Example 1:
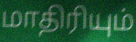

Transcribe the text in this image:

மாதிரியும்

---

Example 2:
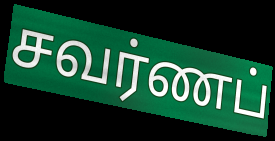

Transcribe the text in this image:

சவர்ணப்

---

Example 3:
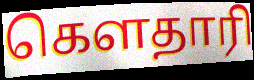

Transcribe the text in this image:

கௌதாரி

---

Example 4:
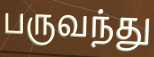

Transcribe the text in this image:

பருவந்து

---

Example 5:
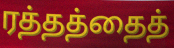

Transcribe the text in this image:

ரத்தத்தைத்